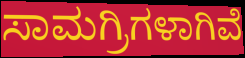
ಸಾಮಗ್ರಿಗಳಾಗಿವೆ